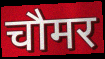
चौमर